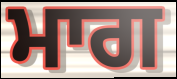
ਮਾਗ